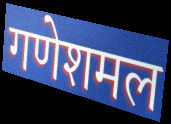
गणेशमल